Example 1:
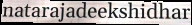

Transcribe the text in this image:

natarajadeekshidhar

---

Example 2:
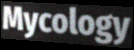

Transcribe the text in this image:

Mycology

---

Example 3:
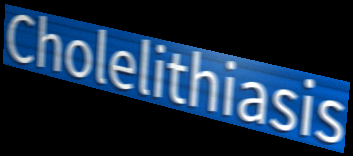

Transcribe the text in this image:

Cholelithiasis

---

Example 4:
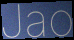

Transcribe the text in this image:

Jao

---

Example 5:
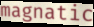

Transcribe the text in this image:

magnatic